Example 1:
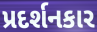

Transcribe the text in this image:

પ્રદર્શનકાર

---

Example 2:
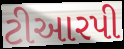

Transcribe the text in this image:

ટીઆરપી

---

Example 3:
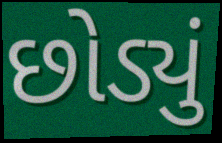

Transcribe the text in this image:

છોડ્યું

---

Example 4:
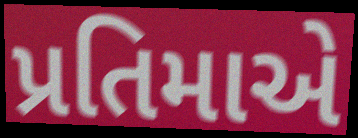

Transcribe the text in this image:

પ્રતિમાએ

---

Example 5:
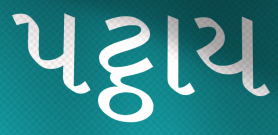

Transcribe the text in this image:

પટ્ઠાય